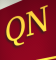
QN